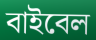
বাইবেল